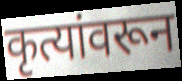
कृत्यांवरून